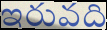
ఇరువది